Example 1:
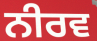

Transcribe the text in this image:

ਨੀਰਵ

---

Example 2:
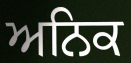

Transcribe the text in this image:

ਅਨਿਕ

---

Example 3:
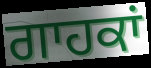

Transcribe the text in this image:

ਗਾਹਕਾਂ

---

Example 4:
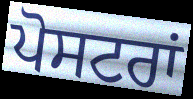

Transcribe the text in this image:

ਪੋਸਟਰਾਂ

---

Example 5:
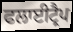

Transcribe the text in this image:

ਫਲਾਈਟ੍ਰੈਪ